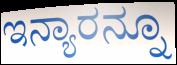
ಇನ್ಯಾರನ್ನೂ